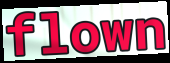
flown